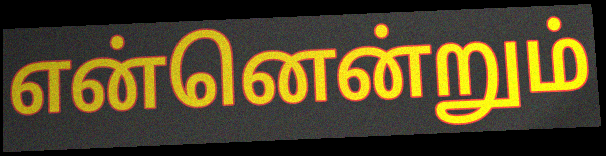
என்னென்றும்